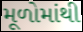
મૂળોમાંથી